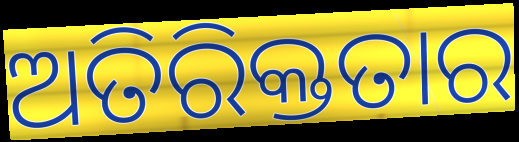
ଅତିରିକ୍ତତାର